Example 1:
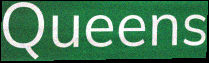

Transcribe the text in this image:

Queens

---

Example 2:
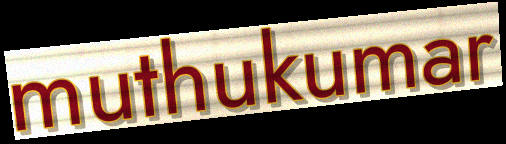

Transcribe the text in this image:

muthukumar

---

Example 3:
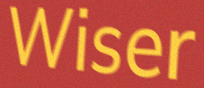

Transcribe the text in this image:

Wiser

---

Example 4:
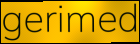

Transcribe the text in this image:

gerimed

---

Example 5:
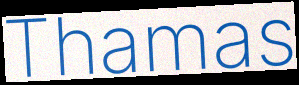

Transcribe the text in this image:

Thamas